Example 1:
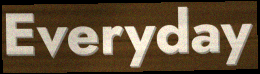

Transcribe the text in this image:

Everyday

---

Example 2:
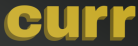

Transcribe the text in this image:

curr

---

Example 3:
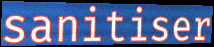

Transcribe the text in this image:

sanitiser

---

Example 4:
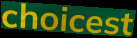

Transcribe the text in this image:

choicest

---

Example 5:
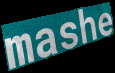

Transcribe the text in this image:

mashe